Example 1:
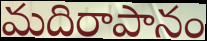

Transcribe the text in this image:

మదిరాపానం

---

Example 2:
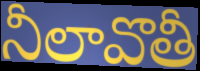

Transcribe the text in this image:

నీలావొతీ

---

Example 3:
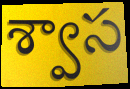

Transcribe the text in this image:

శ్వాస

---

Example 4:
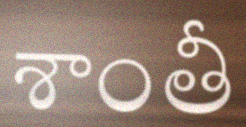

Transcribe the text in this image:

శాంతీ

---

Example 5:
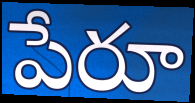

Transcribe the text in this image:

పేరూ